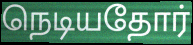
நெடியதோர்